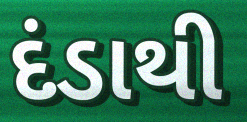
દંડાથી